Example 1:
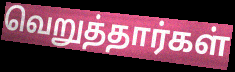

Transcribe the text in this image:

வெறுத்தார்கள்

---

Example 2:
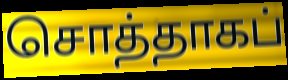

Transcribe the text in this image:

சொத்தாகப்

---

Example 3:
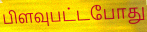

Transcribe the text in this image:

பிளவுபட்டபோது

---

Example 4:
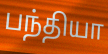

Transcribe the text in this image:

பந்தியா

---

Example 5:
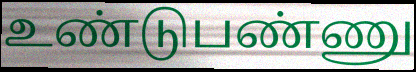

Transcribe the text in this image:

உண்டுபண்ணு